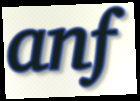
anf